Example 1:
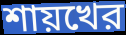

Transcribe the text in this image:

শায়খের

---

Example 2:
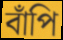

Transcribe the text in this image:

বাঁপি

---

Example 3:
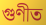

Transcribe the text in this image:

গুণীত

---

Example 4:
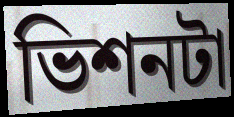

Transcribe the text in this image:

ভিশনটা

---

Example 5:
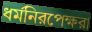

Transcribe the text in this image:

ধর্মনিরপেক্ষরা